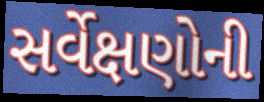
સર્વેક્ષણોની